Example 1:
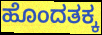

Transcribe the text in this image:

ಹೊಂದತಕ್ಕ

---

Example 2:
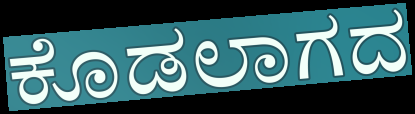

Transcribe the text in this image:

ಕೊಡಲಾಗದ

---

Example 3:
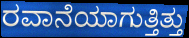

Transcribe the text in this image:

ರವಾನೆಯಾಗುತ್ತಿತ್ತು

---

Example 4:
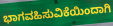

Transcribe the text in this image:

ಭಾಗವಹಿಸುವಿಕೆಯಿಂದಾಗಿ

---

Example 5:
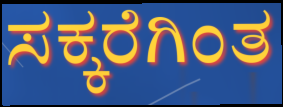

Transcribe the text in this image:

ಸಕ್ಕರೆಗಿಂತ